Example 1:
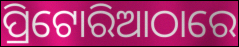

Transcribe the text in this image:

ପ୍ରିଟୋରିଆଠାରେ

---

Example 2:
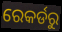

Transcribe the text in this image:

ରେକର୍ଡରୁ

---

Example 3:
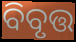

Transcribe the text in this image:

ବିବୃତ୍ତ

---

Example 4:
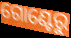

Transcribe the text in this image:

ଗୋଣ୍ଟେରୁ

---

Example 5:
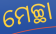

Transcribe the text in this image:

ମେଚ୍ଛା